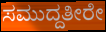
ಸಮುದ್ದತೀರೇ